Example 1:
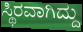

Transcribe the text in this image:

ಸ್ಥಿರವಾಗಿದ್ದು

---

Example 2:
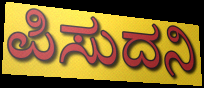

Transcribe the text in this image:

ಪಿಸುದನಿ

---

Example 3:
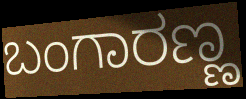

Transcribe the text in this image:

ಬಂಗಾರಣ್ಣ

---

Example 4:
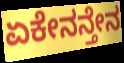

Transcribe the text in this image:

ಏಕೇನನ್ತೇನ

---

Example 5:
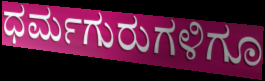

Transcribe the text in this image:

ಧರ್ಮಗುರುಗಳಿಗೂ